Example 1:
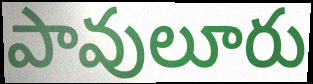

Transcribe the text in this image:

పావులూరు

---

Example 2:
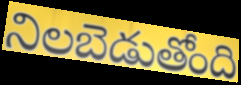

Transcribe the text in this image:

నిలబెడుతోంది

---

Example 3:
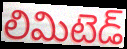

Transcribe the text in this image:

లిమిటెడ్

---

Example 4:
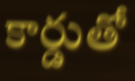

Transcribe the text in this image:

కార్డుతో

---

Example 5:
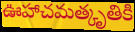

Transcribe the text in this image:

ఊహాచమత్కృతికి